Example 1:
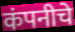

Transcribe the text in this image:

कंपनीचे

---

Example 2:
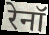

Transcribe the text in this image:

रेनॉ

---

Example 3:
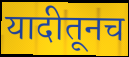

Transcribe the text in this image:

यादीतूनच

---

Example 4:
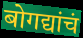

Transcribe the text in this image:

बोगद्यांचं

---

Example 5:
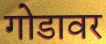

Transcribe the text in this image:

गोडावर